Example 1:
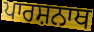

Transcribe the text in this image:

ਪਾਰਸ਼ਨਾਥ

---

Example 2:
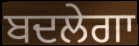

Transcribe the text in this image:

ਬਦਲੇਗਾ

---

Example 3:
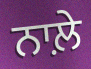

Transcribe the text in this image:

ਨਾਲ਼ੇ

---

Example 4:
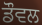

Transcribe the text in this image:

ਡੌਵਲ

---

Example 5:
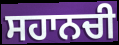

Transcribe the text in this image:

ਸਹਾਨਚੀ